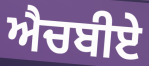
ਐਚਬੀਏ